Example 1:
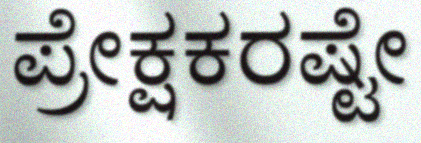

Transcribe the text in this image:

ಪ್ರೇಕ್ಷಕರಷ್ಟೇ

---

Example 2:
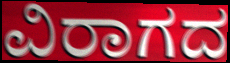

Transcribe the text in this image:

ವಿರಾಗದ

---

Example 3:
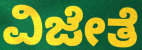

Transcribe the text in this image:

ವಿಜೇತೆ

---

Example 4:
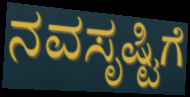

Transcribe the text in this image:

ನವಸೃಷ್ಟಿಗೆ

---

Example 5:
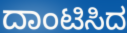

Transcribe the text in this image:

ದಾಂಟಿಸಿದ